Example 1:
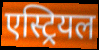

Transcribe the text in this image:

एस्ट्रियल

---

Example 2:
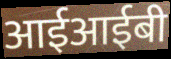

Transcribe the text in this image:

आईआईबी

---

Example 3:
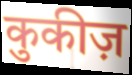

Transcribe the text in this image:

कुकीज़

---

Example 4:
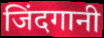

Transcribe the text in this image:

जिंदगानी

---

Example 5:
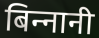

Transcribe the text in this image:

बिन्नानी